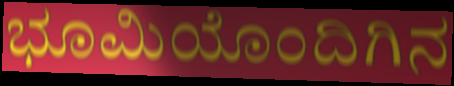
ಭೂಮಿಯೊಂದಿಗಿನ